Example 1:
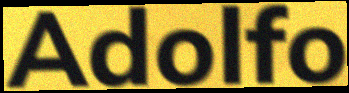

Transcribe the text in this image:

Adolfo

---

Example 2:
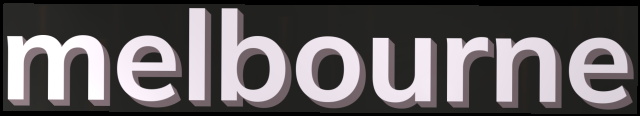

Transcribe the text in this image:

melbourne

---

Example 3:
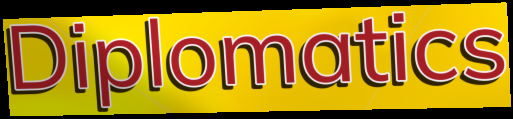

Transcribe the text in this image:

Diplomatics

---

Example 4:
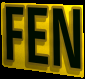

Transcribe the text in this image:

FEN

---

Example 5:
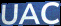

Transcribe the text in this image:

UAC